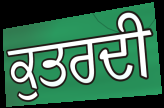
ਕੁਤਰਦੀ